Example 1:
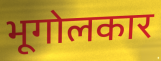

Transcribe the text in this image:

भूगोलकार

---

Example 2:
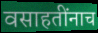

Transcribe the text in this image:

वसाहतींनाच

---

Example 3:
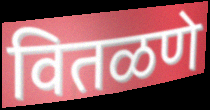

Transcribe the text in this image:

वितळणे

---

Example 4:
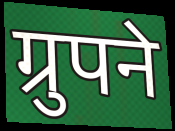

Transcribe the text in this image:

ग्रुपने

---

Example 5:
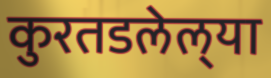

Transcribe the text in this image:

कुरतडलेल्या